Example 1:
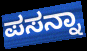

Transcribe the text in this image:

ಪಸನ್ನಾ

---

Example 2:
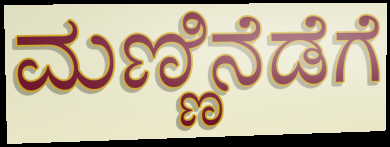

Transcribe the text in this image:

ಮಣ್ಣಿನೆಡೆಗೆ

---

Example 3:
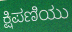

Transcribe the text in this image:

ಕ್ಷಿಪಣಿಯು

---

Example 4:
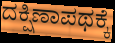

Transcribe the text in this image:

ದಕ್ಷಿಣಾಪಥಕ್ಕೆ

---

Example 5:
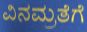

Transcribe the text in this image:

ವಿನಮ್ರತೆಗೆ